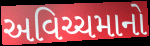
અવિચ્ચમાનો